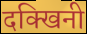
दक्खिनी